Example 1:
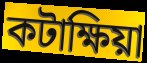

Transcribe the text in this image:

কটাক্ষিয়া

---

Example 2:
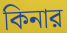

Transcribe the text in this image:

কিনার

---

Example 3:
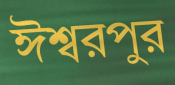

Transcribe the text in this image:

ঈশ্বরপুর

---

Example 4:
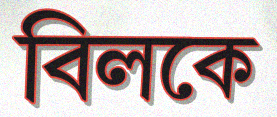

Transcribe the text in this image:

বিলকে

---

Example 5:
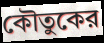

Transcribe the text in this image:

কৌতুকের